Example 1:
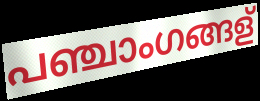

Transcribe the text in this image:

പഞ്ചാംഗങ്ങള്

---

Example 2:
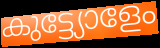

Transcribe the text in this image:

കുട്ട്യോളേം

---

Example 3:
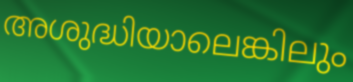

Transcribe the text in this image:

അശുദ്ധിയാലെങ്കിലും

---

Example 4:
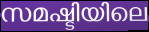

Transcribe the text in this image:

സമഷ്ടിയിലെ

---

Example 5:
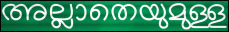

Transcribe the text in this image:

അല്ലാതെയുമുള്ള